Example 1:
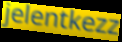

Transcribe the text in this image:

jelentkezz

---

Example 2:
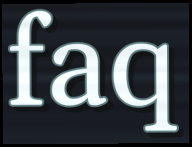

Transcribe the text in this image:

faq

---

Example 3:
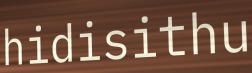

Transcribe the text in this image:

hidisithu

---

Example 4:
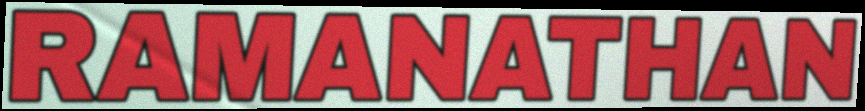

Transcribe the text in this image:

RAMANATHAN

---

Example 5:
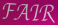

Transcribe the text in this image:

FAIR